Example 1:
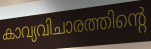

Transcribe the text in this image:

കാവ്യവിചാരത്തിന്റെ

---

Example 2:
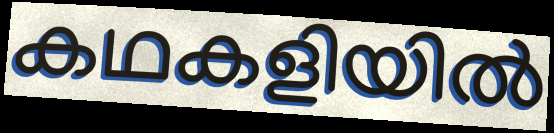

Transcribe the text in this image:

കഥകളിയിൽ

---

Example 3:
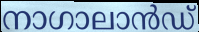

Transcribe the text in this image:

നാഗാലാൻഡ്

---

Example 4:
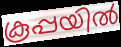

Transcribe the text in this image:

കൂപ്പയിൽ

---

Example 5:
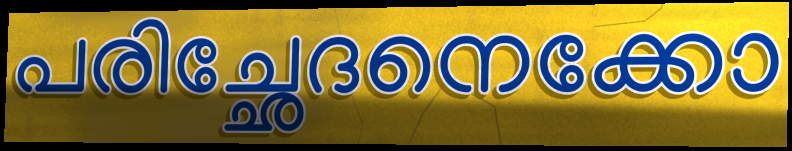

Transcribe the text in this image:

പരിച്ഛേദനെക്കോ